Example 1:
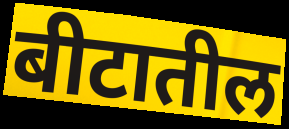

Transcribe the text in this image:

बीटातील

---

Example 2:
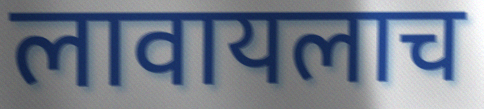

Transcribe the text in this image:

लावायलाच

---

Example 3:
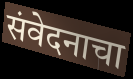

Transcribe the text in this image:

संवेदनाचा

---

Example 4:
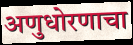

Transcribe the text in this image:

अणुधोरणाचा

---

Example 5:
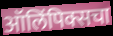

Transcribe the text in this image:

ऑलिंपिक्सचा